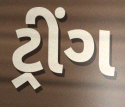
ટ્રીંગ